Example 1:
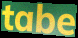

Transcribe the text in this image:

tabe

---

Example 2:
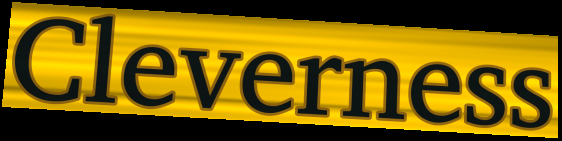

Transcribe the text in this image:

Cleverness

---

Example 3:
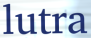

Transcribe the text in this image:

lutra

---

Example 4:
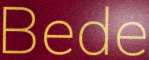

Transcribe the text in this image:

Bede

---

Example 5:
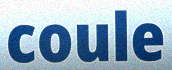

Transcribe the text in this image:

coule